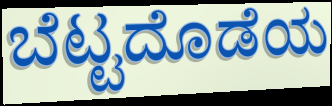
ಬೆಟ್ಟದೊಡೆಯ